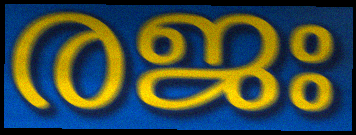
രജഃ